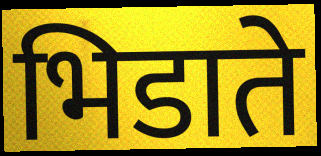
भिडाते